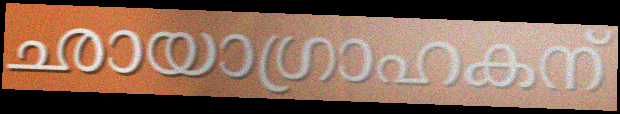
ഛായാഗ്രാഹകന്